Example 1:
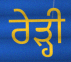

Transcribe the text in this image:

ਰੇੜ੍ਹੀ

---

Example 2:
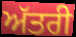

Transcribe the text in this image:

ਅੱਤਰੀ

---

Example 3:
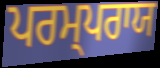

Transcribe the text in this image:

ਪਰਮ੍ਪਰਾਯ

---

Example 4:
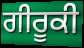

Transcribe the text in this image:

ਗੀਰੂਕੀ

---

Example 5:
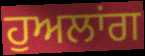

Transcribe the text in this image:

ਹੁਅਲਾਂਗ